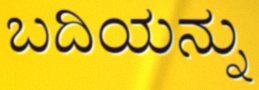
ಬದಿಯನ್ನು